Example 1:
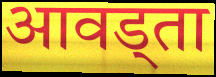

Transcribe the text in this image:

आवड्ता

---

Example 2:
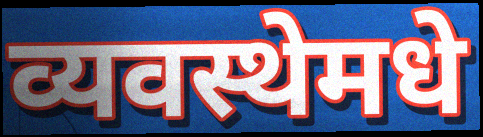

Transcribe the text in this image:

व्यवस्थेमधे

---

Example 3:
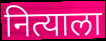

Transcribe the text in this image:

नित्याला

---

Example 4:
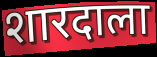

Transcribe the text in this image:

शारदाला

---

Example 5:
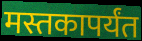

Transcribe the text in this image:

मस्तकापर्यंत